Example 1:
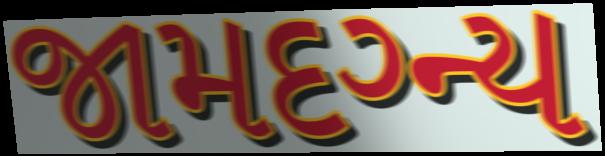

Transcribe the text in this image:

જામદગ્ન્ય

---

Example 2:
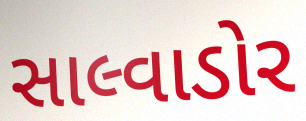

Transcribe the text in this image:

સાલ્વાડોર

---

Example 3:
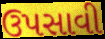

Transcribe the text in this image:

ઉપસાવી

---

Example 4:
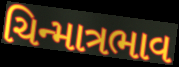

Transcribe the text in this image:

ચિન્માત્રભાવ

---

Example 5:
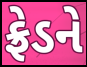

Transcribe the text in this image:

ફ્રેડને